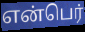
என்பெர்